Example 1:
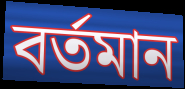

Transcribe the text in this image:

বৰ্তমান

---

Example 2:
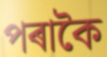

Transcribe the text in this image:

পৰাকৈ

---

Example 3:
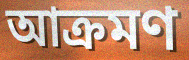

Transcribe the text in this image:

আক্ৰমণ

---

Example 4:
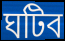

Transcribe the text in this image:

ঘটিব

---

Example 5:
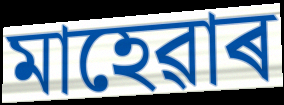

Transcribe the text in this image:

মাহেৱাৰ